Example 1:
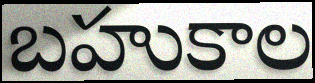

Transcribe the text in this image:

బహుకాల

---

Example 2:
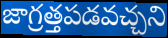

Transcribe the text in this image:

జాగ్రత్తపడవచ్చని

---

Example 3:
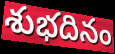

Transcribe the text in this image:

శుభదినం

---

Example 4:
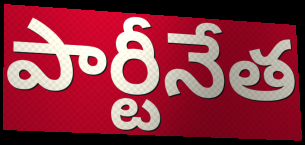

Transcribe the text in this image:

పార్టీనేత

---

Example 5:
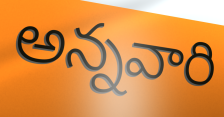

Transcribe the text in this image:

అన్నవారి